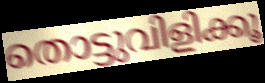
തൊട്ടുവിളിക്കൂ